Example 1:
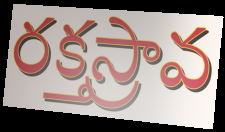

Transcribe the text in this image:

రక్తస్రావ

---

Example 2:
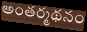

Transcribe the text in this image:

అంతర్మథనం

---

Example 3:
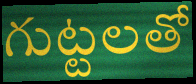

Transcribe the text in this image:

గుట్టలతో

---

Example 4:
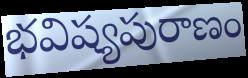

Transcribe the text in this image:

భవిష్యపురాణం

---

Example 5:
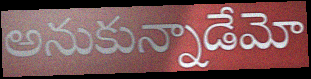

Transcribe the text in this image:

అనుకున్నాడేమో